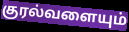
குரல்வளையும்